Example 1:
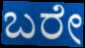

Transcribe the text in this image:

ಬರೇ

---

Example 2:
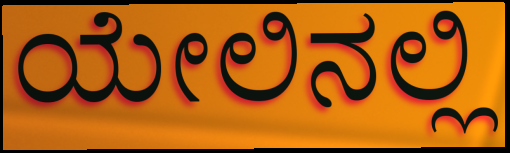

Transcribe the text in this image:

ಯೇಲಿನಲ್ಲಿ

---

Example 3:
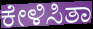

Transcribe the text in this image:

ಕೇಳಿಸಿತಾ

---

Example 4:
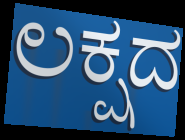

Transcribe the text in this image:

ಲಕ್ಷದ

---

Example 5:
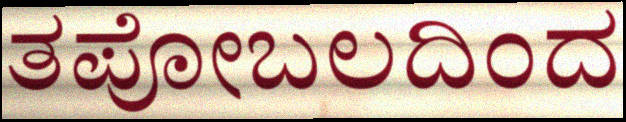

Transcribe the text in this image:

ತಪೋಬಲದಿಂದ